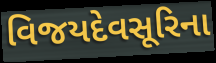
વિજયદેવસૂરિના